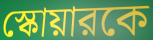
স্কোয়ারকে